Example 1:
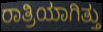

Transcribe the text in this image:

ರಾತ್ರಿಯಾಗಿತ್ತು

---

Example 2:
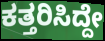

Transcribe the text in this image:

ಕತ್ತರಿಸಿದ್ದೇ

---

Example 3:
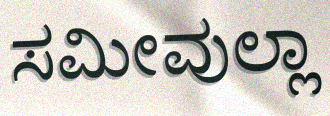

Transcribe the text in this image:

ಸಮೀವುಲ್ಲಾ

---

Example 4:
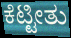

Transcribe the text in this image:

ಕೆಟ್ಟೀತು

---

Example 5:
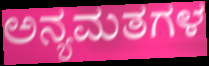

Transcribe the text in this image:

ಅನ್ಯಮತಗಳ